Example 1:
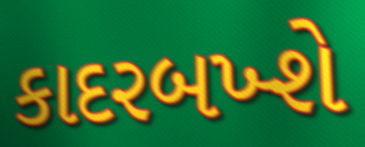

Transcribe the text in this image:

કાદરબખ્શે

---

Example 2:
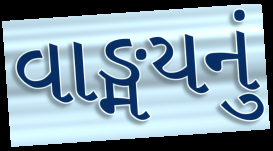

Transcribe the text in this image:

વાઙ્મયનું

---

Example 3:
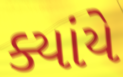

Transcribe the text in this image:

ક્યાંયે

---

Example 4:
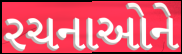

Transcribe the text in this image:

રચનાઓને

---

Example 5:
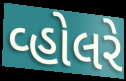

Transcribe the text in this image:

વ્હોલરે